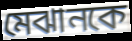
মেঝানকে